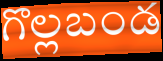
గొల్లబండ